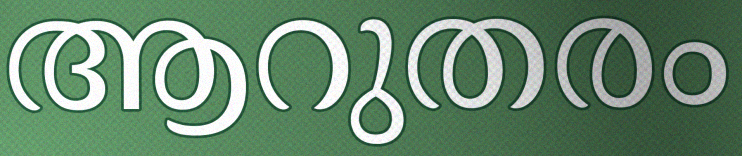
ആറുതരം